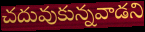
చదువుకున్నవాడని